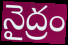
నైద్రం